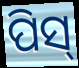
ପିସ୍